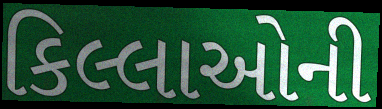
કિલ્લાઓની